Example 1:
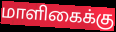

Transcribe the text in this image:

மாளிகைக்கு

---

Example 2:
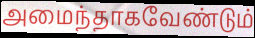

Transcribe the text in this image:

அமைந்தாகவேண்டும்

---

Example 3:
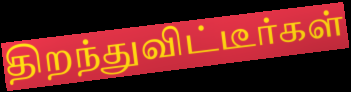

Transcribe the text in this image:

திறந்துவிட்டீர்கள்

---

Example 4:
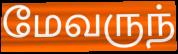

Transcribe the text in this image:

மேவருந்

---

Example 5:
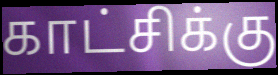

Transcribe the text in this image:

காட்சிக்கு